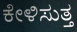
ಕೇಳಿಸುತ್ತ